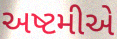
અષ્ટમીએ